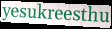
yesukreesthu